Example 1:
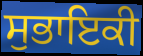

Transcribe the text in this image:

ਸੁਭਾਇਕੀ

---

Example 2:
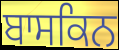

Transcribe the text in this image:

ਬਾਸਕਿਨ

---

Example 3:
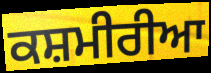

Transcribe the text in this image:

ਕਸ਼ਮੀਰੀਆ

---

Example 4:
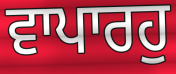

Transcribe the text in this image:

ਵਾਪਾਰਹੁ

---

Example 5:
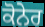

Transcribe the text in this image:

ਕੋਨੇਰ